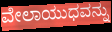
ವೇಲಾಯುಧವನ್ನು